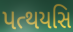
પત્થયસિ